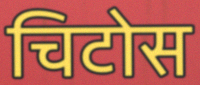
चिटोस